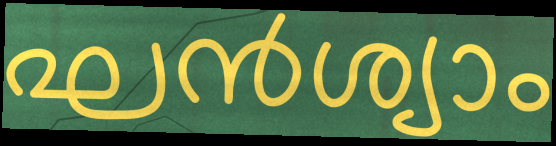
ഘൻശ്യാം